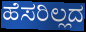
ಹೆಸರಿಲ್ಲದ